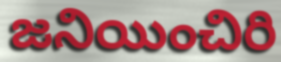
జనియించిరి